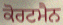
ਕੋਰਟਮੈਨ